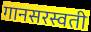
गानसरस्वती